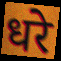
धरे